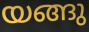
യങ്ങു